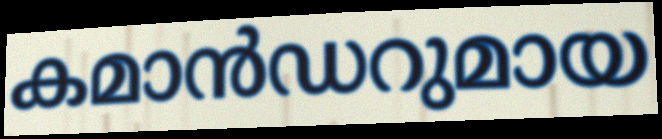
കമാൻഡറുമായ